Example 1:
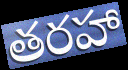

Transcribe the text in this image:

తరహా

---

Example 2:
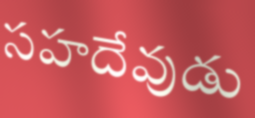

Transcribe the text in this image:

సహదేవుడు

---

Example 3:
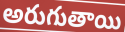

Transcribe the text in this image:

అరుగుతాయి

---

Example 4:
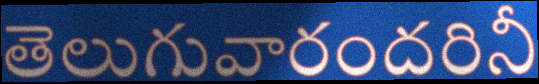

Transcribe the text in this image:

తెలుగువారందరినీ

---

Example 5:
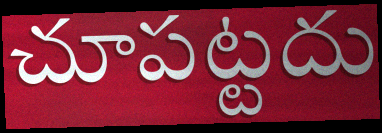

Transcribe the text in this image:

చూపట్టదు